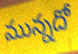
మున్నదో